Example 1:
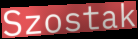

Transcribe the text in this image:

Szostak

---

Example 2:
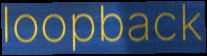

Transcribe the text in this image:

loopback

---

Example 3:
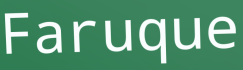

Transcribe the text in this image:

Faruque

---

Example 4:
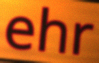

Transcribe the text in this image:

ehr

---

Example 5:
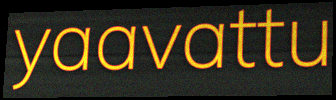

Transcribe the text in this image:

yaavattu